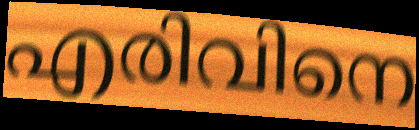
എരിവിനെ